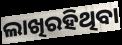
ଲାଖିରହିଥିବା